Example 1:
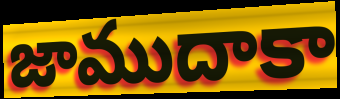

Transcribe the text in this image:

జాముదాకా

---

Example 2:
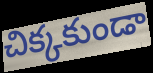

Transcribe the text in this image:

చిక్కకుండా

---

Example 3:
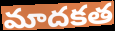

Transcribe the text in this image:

మాదకత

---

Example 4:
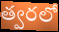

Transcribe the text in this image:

త్వరలో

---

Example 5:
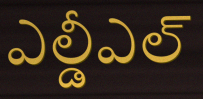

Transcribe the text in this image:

ఎల్డీఎల్